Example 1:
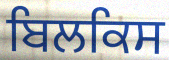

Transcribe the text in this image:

ਬਿਲਕਿਸ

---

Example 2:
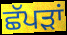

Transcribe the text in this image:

ਛੱਪੜਾਂ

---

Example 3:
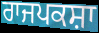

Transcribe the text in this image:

ਰਾਜਪਕਸ਼ਾ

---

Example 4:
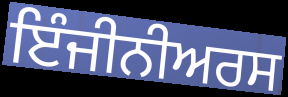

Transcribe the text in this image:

ਇੰਜੀਨੀਅਰਸ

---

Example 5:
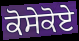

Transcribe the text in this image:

ਕੋਸੇਕੋਏ